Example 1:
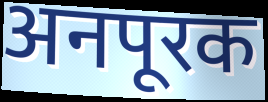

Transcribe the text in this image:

अनपूरक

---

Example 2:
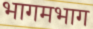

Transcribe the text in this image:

भागमभाग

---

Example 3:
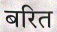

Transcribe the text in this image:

बरित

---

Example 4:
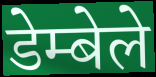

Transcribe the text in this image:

डेम्बेले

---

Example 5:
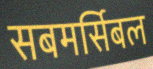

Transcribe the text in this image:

सबमर्सिबल